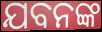
ଯବନଙ୍କ